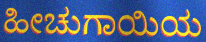
ಹೀಚುಗಾಯಿಯ